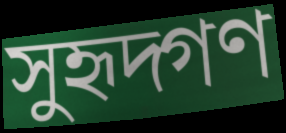
সুহৃদ্গণ